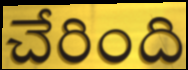
చేరింది